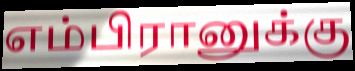
எம்பிரானுக்கு